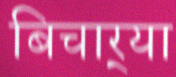
बिचार्या